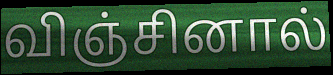
விஞ்சினால்